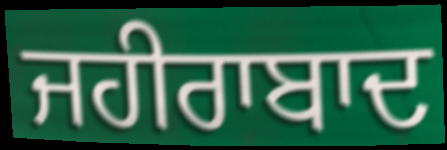
ਜਹੀਰਾਬਾਦ